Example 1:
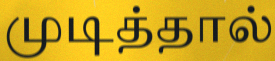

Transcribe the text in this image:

முடித்தால்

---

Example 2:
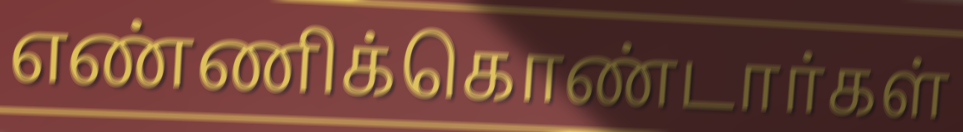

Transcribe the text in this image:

எண்ணிக்கொண்டார்கள்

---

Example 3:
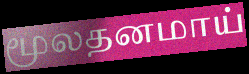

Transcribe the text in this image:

மூலதனமாய்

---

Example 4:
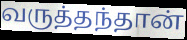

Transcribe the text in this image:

வருத்தந்தான்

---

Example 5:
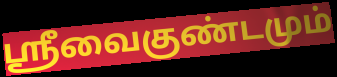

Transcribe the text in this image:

ஸ்ரீவைகுண்டமும்